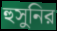
হুসুনির